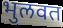
भुलवत